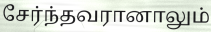
சேர்ந்தவரானாலும்